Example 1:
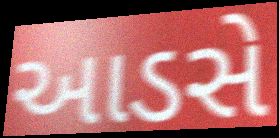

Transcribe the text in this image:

આડસે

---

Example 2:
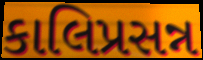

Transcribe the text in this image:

કાલિપ્રસન્ન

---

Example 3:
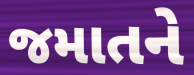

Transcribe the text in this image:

જમાતને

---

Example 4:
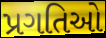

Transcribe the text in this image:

પ્રગતિઓ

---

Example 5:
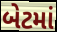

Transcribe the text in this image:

બેટમાં